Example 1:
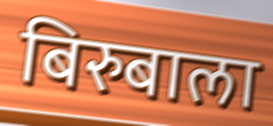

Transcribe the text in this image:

बिरुबाला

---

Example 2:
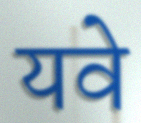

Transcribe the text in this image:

यवे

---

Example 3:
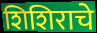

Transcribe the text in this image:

शिशिराचे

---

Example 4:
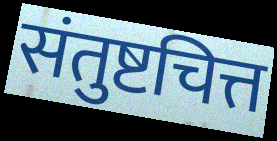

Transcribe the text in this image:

संतुष्टचित्त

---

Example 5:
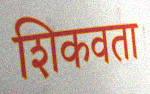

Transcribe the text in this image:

शिकवता